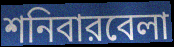
শনিবারবেলা